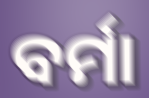
ବର୍ମା